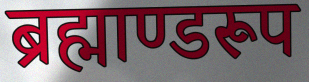
ब्रह्माण्डरूप